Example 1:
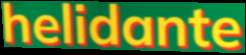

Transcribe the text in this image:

helidante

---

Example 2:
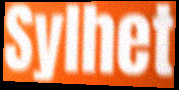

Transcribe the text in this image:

Sylhet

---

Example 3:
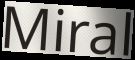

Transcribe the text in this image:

Miral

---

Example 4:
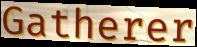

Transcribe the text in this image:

Gatherer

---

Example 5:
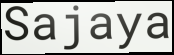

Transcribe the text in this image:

Sajaya